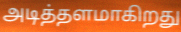
அடித்தளமாகிறது